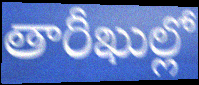
తారీఖుల్లో